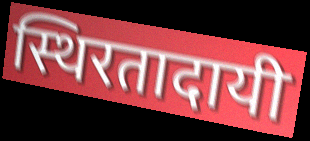
स्थिरतादायी